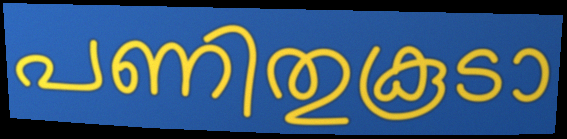
പണിതുകൂടാ